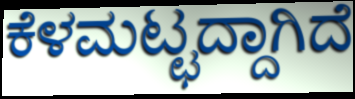
ಕೆಳಮಟ್ಟದ್ದಾಗಿದೆ